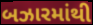
બઝારમાંથી